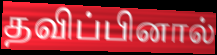
தவிப்பினால்